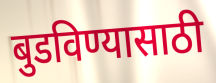
बुडविण्यासाठी